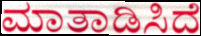
ಮಾತಾಡಿಸಿದೆ